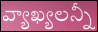
వ్యాఖ్యలన్నీ